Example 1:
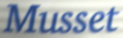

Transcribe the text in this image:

Musset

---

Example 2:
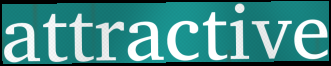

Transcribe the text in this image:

attractive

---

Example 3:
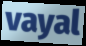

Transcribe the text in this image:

vayal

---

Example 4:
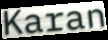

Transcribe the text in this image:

Karan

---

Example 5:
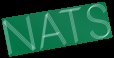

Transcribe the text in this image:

NATS